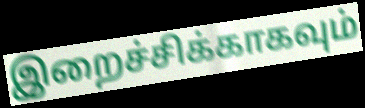
இறைச்சிக்காகவும்